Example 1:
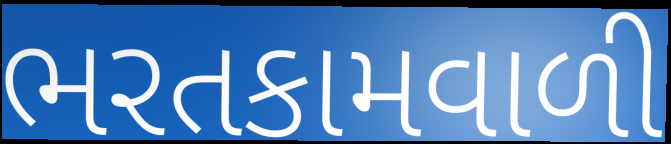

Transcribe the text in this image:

ભરતકામવાળી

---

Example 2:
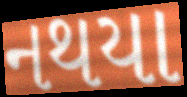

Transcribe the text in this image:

નથયા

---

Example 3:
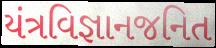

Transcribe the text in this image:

યંત્રવિજ્ઞાનજનિત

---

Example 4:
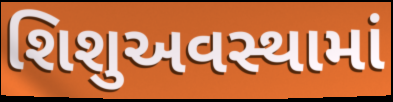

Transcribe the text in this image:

શિશુઅવસ્થામાં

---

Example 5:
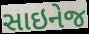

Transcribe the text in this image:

સાઇનેજ